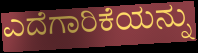
ಎದೆಗಾರಿಕೆಯನ್ನು